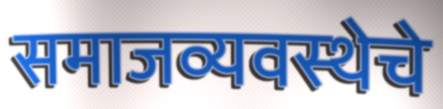
समाजव्यवस्थेचे